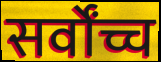
सर्वोंच्च